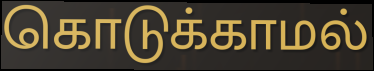
கொடுக்காமல்